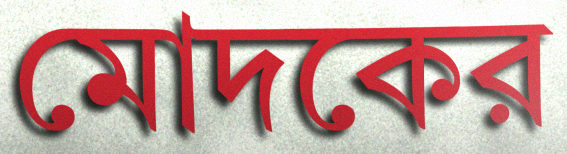
মোদকের